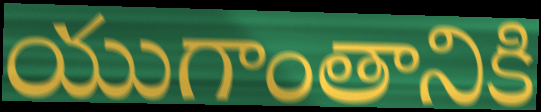
యుగాంతానికి